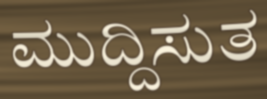
ಮುದ್ದಿಸುತ